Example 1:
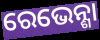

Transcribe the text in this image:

ରେଭେନ୍ଶା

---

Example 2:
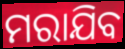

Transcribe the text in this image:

ମରାଯିବ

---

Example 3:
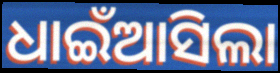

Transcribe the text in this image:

ଧାଇଁଆସିଲା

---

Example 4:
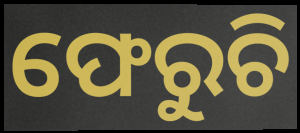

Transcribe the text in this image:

ଫେରୁଚି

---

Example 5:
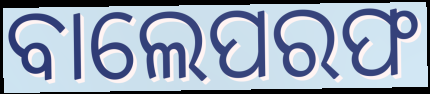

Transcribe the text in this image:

ବାଲେପରଫ